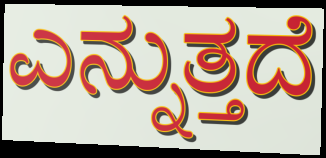
ಎನ್ನುತ್ತದೆ